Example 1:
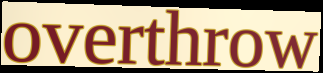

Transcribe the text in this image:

overthrow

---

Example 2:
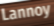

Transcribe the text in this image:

Lannoy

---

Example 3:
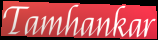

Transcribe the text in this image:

Tamhankar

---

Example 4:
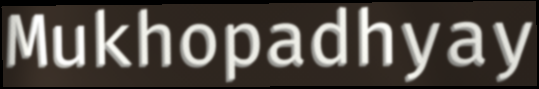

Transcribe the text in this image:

Mukhopadhyay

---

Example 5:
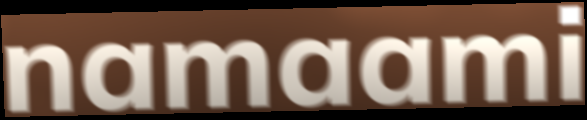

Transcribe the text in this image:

namaami